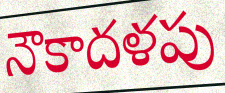
నౌకాదళపు